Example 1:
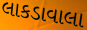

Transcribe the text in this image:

લાકડાવાલા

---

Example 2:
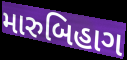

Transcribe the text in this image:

મારુબિહાગ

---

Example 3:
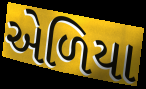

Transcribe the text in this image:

એળિયા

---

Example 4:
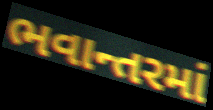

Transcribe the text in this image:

ભવાન્તરમાં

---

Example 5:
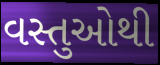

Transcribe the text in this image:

વસ્તુઓથી